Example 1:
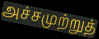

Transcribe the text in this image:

அச்சமுற்றுத்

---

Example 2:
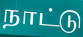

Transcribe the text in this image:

நாட்டு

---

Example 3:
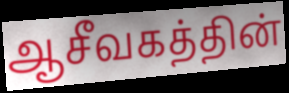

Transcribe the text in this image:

ஆசீவகத்தின்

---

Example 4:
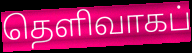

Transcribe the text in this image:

தெளிவாகப்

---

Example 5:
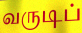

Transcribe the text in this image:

வருடிப்